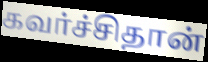
கவர்ச்சிதான்